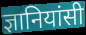
ज्ञानियांसी